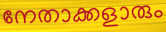
നേതാക്കളാരും